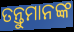
ତନ୍ତୁମାନଙ୍କ